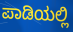
ಪಾಡಿಯಲ್ಲಿ